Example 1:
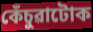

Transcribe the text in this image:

কেঁচুৱাটোক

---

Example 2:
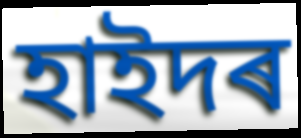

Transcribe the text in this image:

হাইদৰ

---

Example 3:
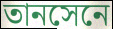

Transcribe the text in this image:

তানসেনে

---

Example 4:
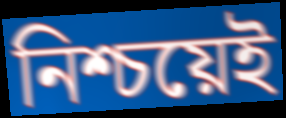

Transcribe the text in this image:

নিশ্চয়েই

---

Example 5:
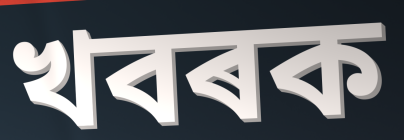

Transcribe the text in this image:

খবৰক